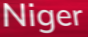
Niger